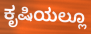
ಕೃಷಿಯಲ್ಲೂ